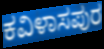
ಕವಿಳಾಸಪುರ